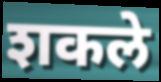
शकले